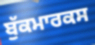
ਬੁੱਕਮਾਰਕਸ